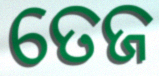
ତେଜ